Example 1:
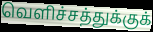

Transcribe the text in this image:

வெளிச்சத்துக்குக்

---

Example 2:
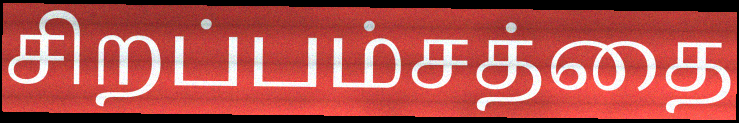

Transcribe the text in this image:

சிறப்பம்சத்தை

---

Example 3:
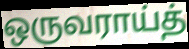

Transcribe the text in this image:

ஒருவராய்த்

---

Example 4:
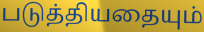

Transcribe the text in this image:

படுத்தியதையும்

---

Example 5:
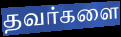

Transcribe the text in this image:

தவர்களை